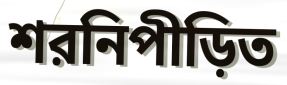
শরনিপীড়িত